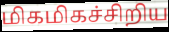
மிகமிகச்சிறிய